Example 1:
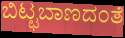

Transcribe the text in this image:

ಬಿಟ್ಟಬಾಣದಂತೆ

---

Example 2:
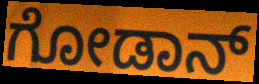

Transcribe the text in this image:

ಗೋಡಾನ್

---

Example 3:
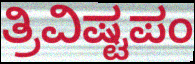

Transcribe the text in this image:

ತ್ರಿವಿಷ್ಟಪಂ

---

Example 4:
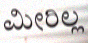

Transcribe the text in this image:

ಮೀರಿಲ್ಲ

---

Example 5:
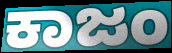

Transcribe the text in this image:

ಕಾಜಂ